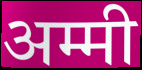
अम्मी